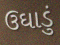
ઉઘાડું